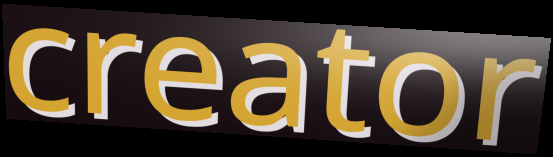
creator